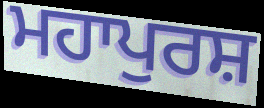
ਮਹਾਪੁਰਸ਼